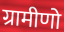
ग्रामीणो